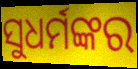
ସୁଧର୍ମଙ୍କର